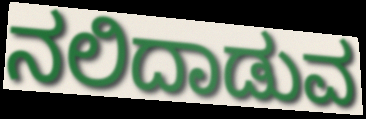
ನಲಿದಾಡುವ